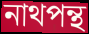
নাথপন্থ